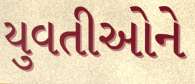
યુવતીઓને